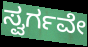
ಸ್ವರ್ಗವೇ